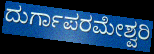
ದುರ್ಗಾಪರಮೇಶ್ವರಿ